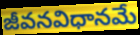
జీవనవిధానమే